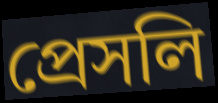
প্রেসলি